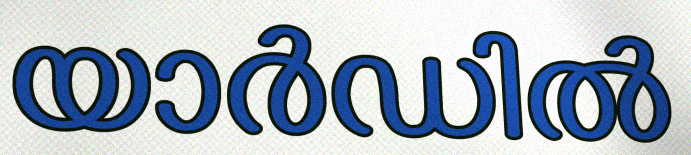
യാർഡിൽ